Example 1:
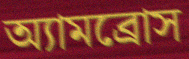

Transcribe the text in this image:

অ্যামব্রোস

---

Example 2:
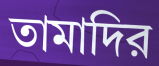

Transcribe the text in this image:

তামাদির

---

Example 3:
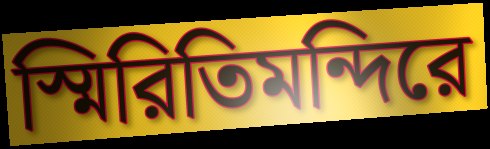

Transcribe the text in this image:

স্মিরিতিমন্দিরে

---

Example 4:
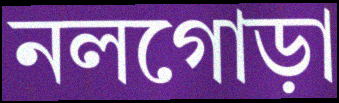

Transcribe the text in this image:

নলগোড়া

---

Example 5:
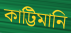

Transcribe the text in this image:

কাট্টিমানি